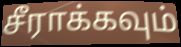
சீராக்கவும்